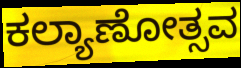
ಕಲ್ಯಾಣೋತ್ಸವ